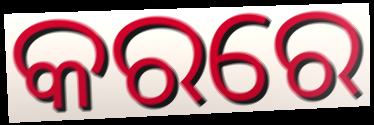
କରରେ